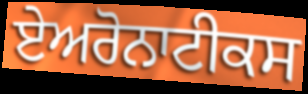
ਏਅਰੋਨਾਟੀਕਸ